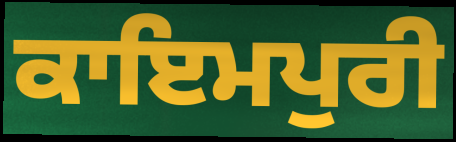
ਕਾਇਮਪੁਰੀ